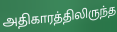
அதிகாரத்திலிருந்த